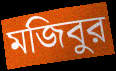
মজিবুর